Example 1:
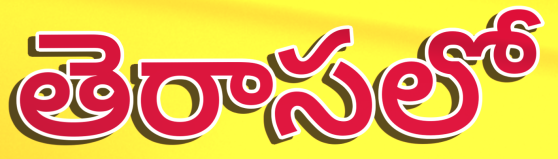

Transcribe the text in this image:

తెరాసలో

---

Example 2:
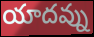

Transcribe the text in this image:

యాదవ్ను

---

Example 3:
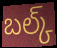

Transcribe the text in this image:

బల్క్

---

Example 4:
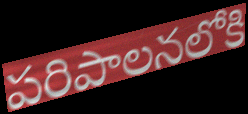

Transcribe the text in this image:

పరిపాలనలోకి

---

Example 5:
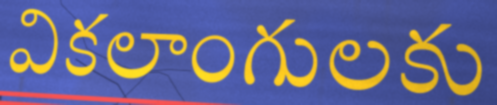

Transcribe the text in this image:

వికలాంగులకు